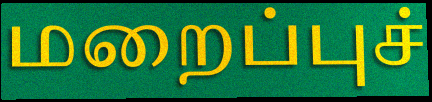
மறைப்புச்